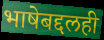
भाषेबद्दलही